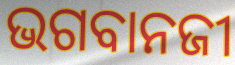
ଭଗବାନଜୀ